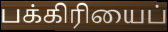
பக்கிரியைப்